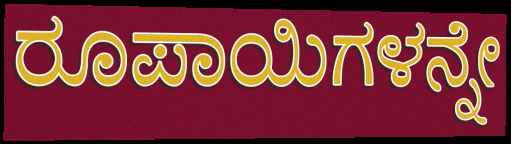
ರೂಪಾಯಿಗಳನ್ನೇ